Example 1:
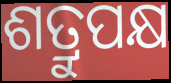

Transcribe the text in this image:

ଶତ୍ରୁପକ୍ଷ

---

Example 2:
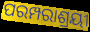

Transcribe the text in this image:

ପରମ୍ପରାଶ୍ରୟୀ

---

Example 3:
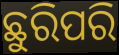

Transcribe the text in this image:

ଛୁରିପରି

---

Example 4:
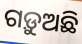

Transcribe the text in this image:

ଗଡ଼ୁଅଛି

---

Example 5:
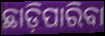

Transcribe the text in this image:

ଛାଡ଼ିପାରିବା